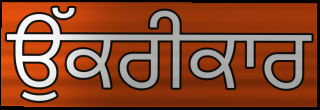
ਉੱਕਰੀਕਾਰ